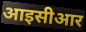
आइसीआर